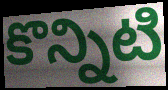
కొన్నిటి